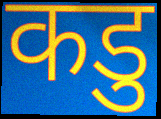
कडु